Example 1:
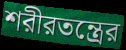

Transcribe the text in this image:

শরীরতন্ত্রের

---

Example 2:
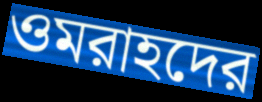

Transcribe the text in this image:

ওমরাহদের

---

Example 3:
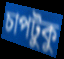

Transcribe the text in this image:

চাপটুকু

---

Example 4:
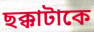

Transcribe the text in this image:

ছক্কাটাকে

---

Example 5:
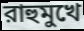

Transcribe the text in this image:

রাহুমুখে